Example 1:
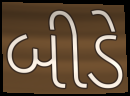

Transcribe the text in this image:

બીડે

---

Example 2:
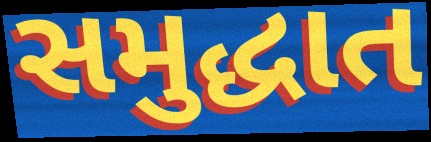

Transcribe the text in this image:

સમુદ્ધાત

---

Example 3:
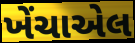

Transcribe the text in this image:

ખેંચાએલ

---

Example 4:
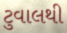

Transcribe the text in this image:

ટુવાલથી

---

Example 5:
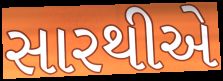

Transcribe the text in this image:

સારથીએ